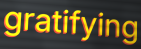
gratifying